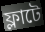
ফ্লাটে